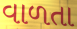
વાળતા